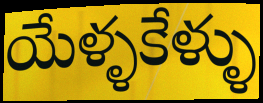
యేళ్ళకేళ్ళు